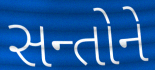
સન્તોને